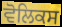
ਵੋਲਿਕਸ